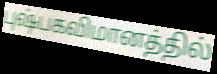
புஷ்பகவிமானத்தில்